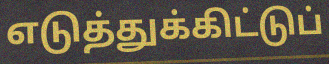
எடுத்துக்கிட்டுப்